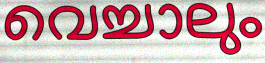
വെച്ചാലും